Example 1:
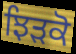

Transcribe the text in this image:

ਝਿੜਕੋ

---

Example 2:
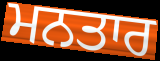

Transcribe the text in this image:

ਮਨਤਾਰ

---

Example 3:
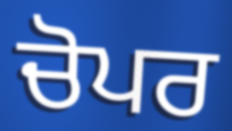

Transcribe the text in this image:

ਚੋਪਰ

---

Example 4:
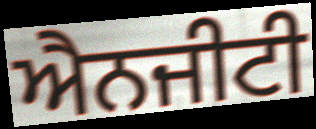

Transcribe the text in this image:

ਐਨਜੀਟੀ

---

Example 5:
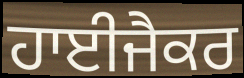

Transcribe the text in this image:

ਹਾਈਜੈਕਰ